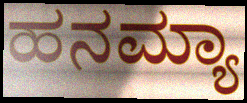
ಹನಮ್ಯಾ